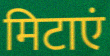
मिटाएं